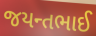
જયન્તભાઈ